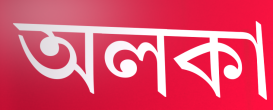
অলকা